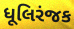
ધૂલિરંજક